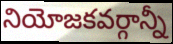
నియోజకవర్గాన్నీ